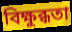
বিক্ষুব্ধতা